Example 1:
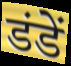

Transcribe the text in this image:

डंडें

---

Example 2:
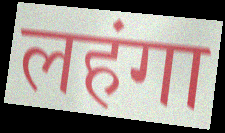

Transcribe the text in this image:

लहंगा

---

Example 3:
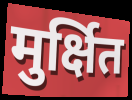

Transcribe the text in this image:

मुर्क्षित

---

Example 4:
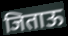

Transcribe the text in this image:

जिताऊ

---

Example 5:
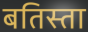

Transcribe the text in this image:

बतिस्ता